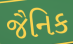
જૈનિક